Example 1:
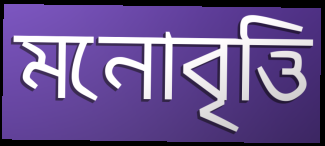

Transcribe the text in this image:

মনোবৃত্তি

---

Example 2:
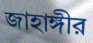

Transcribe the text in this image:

জাহাঙ্গীর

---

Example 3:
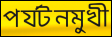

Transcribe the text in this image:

পর্যটনমুখী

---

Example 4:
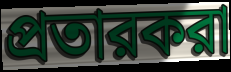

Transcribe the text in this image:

প্রতারকরা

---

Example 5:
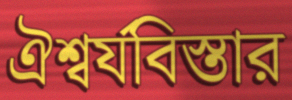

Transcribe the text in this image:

ঐশ্বর্যবিস্তার